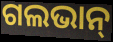
ଗଲଭାନ୍